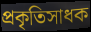
প্রকৃতিসাধক